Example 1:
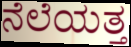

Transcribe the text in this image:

ನೆಲೆಯತ್ತ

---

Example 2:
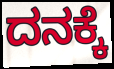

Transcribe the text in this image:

ದನಕ್ಕೆ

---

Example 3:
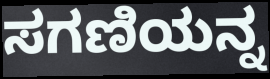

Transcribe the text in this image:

ಸಗಣಿಯನ್ನ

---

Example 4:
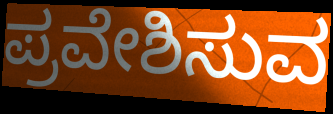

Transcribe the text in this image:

ಪ್ರವೇಶಿಸುವ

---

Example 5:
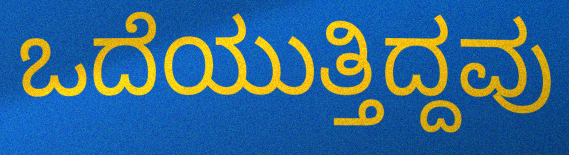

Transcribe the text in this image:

ಒದೆಯುತ್ತಿದ್ದವು